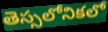
తెస్సలోనికలో